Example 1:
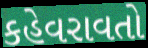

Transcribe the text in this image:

કહેવરાવતો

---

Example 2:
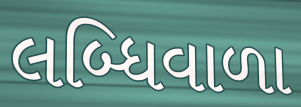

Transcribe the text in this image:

લબ્ધિવાળા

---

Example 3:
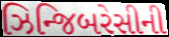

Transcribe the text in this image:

ઝિન્જિબરેસીની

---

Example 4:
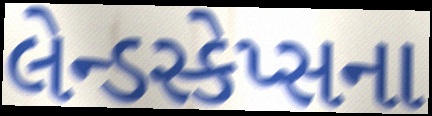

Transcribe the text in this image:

લેન્ડસ્કેપ્સના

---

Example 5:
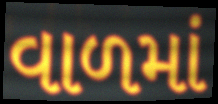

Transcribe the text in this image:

વાળમાં